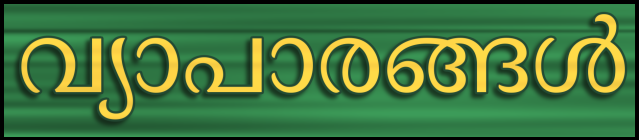
വ്യാപാരങ്ങൾ